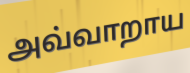
அவ்வாறாய